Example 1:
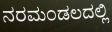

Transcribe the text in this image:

ನರಮಂಡಲದಲ್ಲಿ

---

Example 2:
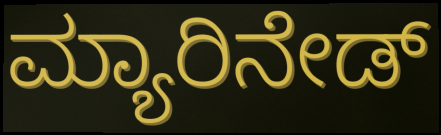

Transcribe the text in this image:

ಮ್ಯಾರಿನೇಡ್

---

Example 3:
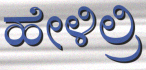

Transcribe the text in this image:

ಹೇಳಿಲ್ರಿ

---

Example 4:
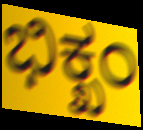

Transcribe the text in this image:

ಭಿಕ್ಖಂ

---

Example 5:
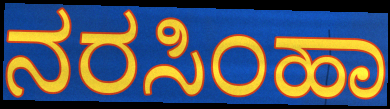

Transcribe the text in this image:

ನರಸಿಂಹಾ